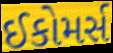
ઈકોમર્સ